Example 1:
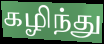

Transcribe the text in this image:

கழிந்து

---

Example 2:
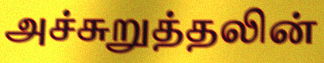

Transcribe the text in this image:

அச்சுறுத்தலின்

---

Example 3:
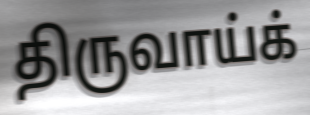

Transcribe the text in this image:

திருவாய்க்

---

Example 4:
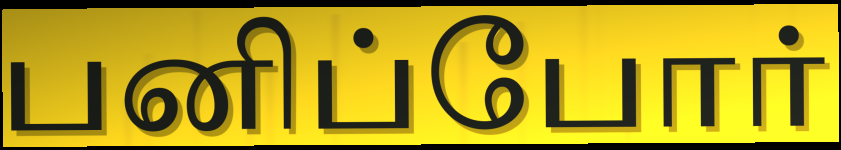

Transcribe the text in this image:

பனிப்போர்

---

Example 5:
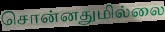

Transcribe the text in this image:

சொன்னதுமில்லை